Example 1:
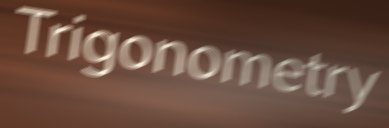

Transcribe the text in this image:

Trigonometry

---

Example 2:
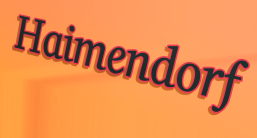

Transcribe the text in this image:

Haimendorf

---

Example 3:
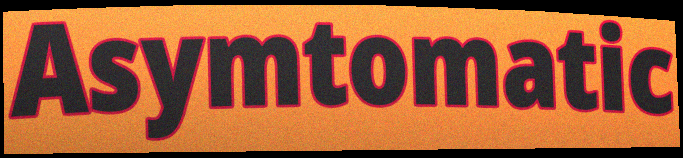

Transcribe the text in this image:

Asymtomatic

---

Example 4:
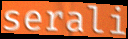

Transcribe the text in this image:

serali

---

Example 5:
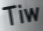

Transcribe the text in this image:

Tiw